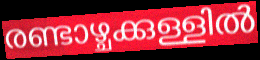
രണ്ടാഴ്ചക്കുള്ളിൽ